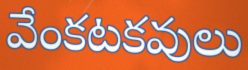
వేంకటకవులు